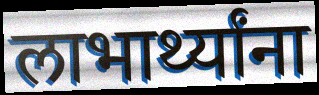
लाभार्थ्यांना